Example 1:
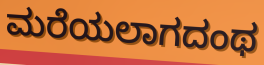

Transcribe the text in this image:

ಮರೆಯಲಾಗದಂಥ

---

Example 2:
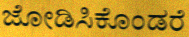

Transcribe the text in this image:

ಜೋಡಿಸಿಕೊಂಡರೆ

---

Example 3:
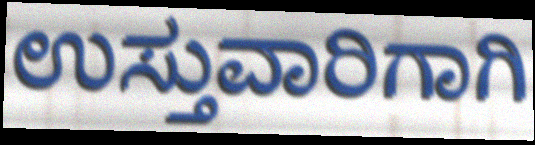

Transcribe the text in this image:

ಉಸ್ತುವಾರಿಗಾಗಿ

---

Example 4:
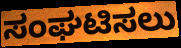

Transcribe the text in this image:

ಸಂಘಟಿಸಲು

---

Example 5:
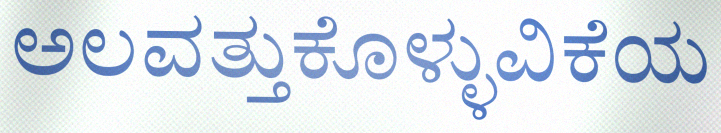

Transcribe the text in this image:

ಅಲವತ್ತುಕೊಳ್ಳುವಿಕೆಯ